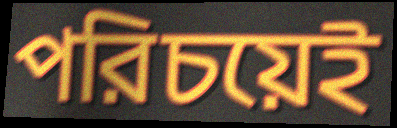
পরিচয়েই